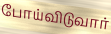
போய்விடுவார்